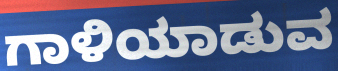
ಗಾಳಿಯಾಡುವ